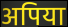
अपिया